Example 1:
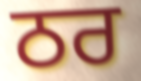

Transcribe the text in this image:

ਠਰ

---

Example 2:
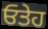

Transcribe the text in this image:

ਓਤੇਹ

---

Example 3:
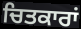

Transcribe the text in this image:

ਚਿਤਕਾਰਾਂ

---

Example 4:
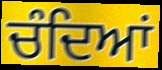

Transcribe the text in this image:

ਚੰਦਿਆਂ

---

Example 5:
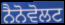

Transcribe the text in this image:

ਨੈਨੋਵੋਲਟ